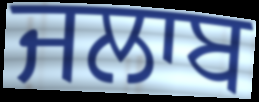
ਜਲਾਬ